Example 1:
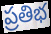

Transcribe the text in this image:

ప్రతిభ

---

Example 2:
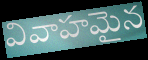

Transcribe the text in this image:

వివాహమైన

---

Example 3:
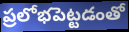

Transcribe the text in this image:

ప్రలోభపెట్టడంతో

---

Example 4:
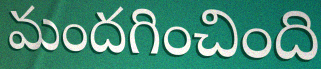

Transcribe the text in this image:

మందగించింది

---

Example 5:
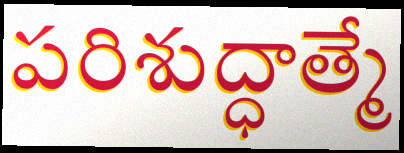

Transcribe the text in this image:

పరిశుద్ధాత్మే